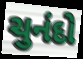
ચુનંદો